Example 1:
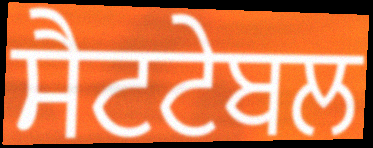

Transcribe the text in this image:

ਸੈਟਟੇਬਲ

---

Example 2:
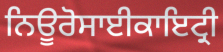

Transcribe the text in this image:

ਨਿਊਰੋਸਾਈਕਾਇਟ੍ਰੀ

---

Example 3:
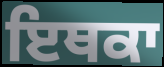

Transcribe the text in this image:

ਇਥਕਾ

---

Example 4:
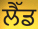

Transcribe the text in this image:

ਲੈੱਡ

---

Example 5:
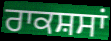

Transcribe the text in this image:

ਰਾਕਸ਼ਸਾਂ